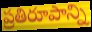
ప్రతిరూపాన్ని